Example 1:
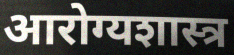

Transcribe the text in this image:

आरोग्यशास्त्र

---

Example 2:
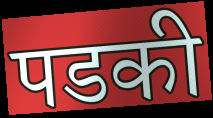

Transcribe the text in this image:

पडकी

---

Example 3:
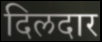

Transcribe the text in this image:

दिलदार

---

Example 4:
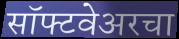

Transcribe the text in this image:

सॉफ्टवेअरचा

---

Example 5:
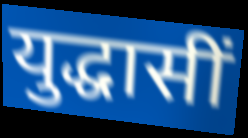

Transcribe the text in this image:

युद्धासीं